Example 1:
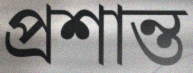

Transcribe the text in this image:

প্ৰশান্ত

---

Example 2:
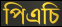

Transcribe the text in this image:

পিএচি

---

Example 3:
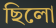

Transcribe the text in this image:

ছিলো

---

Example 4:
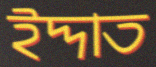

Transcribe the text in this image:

ইদ্দাত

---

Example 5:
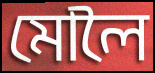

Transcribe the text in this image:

মোলৈ